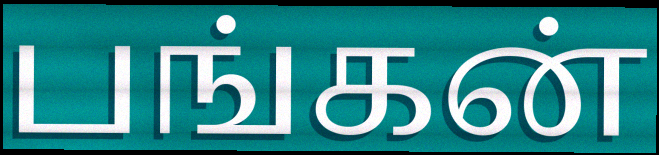
பங்கன்